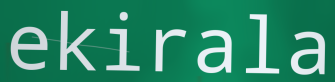
ekirala